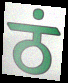
ठं